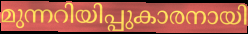
മുന്നറിയിപ്പുകാരനായി